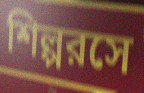
শিল্পরসে